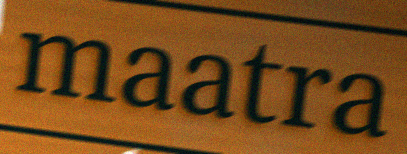
maatra